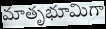
మాతృభూమిగా